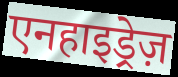
एनहाइड्रेज़